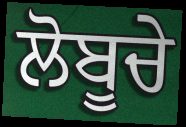
ਲੋਬੂਚੇ